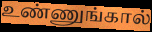
உண்ணுங்கால்